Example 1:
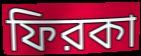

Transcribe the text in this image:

ফিরকা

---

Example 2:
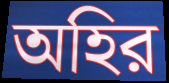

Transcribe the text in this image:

অহির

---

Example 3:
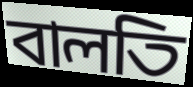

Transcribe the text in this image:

বালতি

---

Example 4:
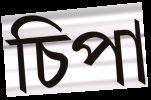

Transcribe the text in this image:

চিপা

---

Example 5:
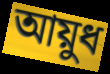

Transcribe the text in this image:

আয়ুধ